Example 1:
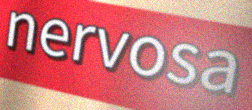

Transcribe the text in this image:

nervosa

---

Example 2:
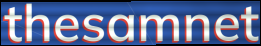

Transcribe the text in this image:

thesamnet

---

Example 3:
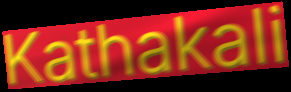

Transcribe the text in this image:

Kathakali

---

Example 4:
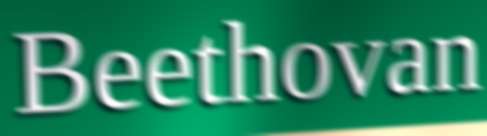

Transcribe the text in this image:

Beethovan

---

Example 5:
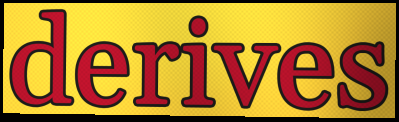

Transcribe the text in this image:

derives